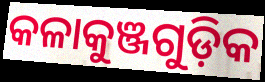
କଳାକୁଞ୍ଜଗୁଡ଼ିକ